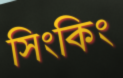
সিংকিং